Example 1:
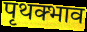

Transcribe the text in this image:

पृथक्भाव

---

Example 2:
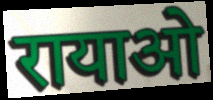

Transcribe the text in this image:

रायाओ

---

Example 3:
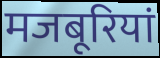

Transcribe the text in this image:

मजबूरियां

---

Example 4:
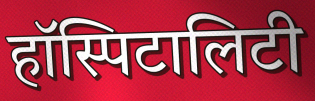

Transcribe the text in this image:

हॉस्पिटालिटी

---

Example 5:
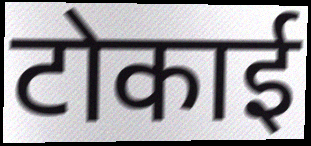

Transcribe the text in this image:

टोकाई